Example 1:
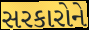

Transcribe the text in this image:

સરકારોને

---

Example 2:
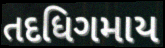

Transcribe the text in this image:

તદધિગમાય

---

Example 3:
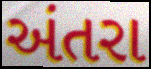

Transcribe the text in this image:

અંતરા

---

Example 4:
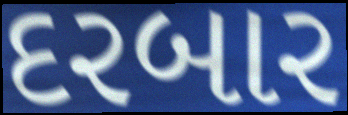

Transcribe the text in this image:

દરબાર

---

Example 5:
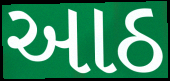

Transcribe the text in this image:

આઠ